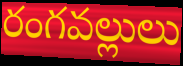
రంగవల్లులు